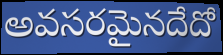
అవసరమైనదేదో